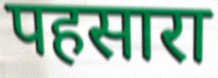
पहसारा